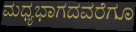
ಮಧ್ಯಭಾಗದವರೆಗೂ